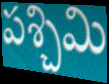
పశ్చిమి